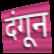
दंगून